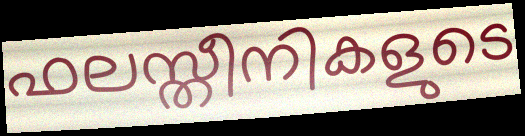
ഫലസ്തീനികളുടെ